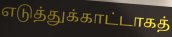
எடுத்துக்காட்டாகத்